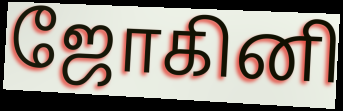
ஜோகினி